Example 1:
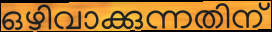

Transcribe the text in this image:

ഒഴിവാക്കുന്നതിന്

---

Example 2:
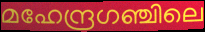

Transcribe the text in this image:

മഹേന്ദ്രഗഞ്ചിലെ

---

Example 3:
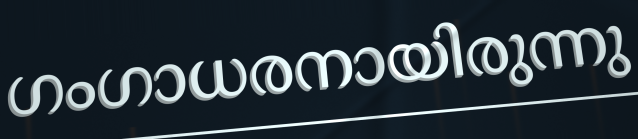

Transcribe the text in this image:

ഗംഗാധരനായിരുന്നു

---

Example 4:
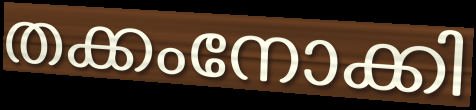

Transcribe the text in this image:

തക്കംനോക്കി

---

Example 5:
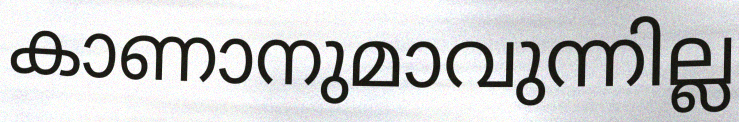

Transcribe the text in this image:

കാണാനുമാവുന്നില്ല